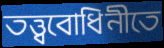
তত্ত্ববোধিনীতে